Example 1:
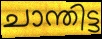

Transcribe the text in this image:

ചാന്തിട്ട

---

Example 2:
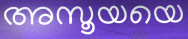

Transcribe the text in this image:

അസൂയയെ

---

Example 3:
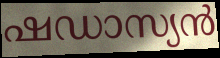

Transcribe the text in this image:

ഷഡാസ്യൻ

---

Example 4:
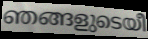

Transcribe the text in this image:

ഞങ്ങളുടെയീ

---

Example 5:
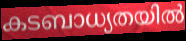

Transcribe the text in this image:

കടബാധ്യതയിൽ